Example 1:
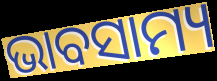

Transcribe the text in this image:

ଭାବସାମ୍ୟ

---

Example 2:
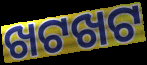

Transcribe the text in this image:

ଖଟଖଟ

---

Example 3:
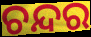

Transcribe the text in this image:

ଚନ୍ଦର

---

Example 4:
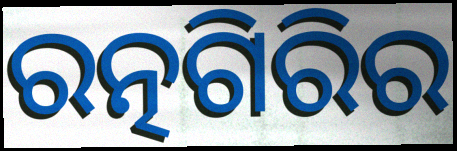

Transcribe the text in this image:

ରତ୍ନଗିରିର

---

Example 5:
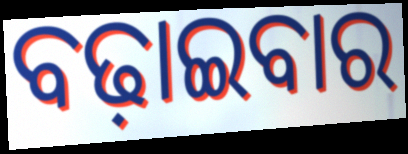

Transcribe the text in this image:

ବଢ଼ାଇବାର